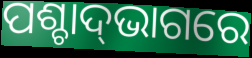
ପଶ୍ଚାଦ୍‌ଭାଗରେ